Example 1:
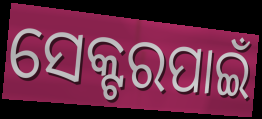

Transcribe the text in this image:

ସେକ୍ଟରପାଇଁ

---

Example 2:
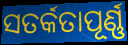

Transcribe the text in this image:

ସତର୍କତାପୂର୍ଣ୍ଣ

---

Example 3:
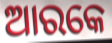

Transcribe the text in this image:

ଆରକେ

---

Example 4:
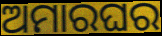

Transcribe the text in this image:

ଅମାରଘର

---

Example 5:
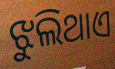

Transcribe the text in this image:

ଝୁଲିଥାଏ